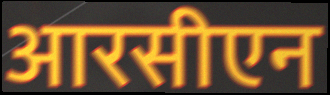
आरसीएन